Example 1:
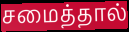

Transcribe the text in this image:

சமைத்தால்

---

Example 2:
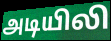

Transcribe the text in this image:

அடியிலி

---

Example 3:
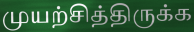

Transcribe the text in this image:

முயற்சித்திருக்க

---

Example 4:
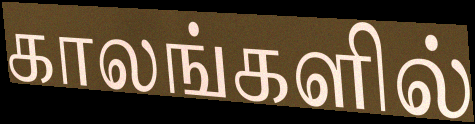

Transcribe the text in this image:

காலங்களில்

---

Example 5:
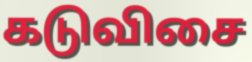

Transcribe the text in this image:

கடுவிசை